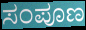
ಸಂಪೂಣ